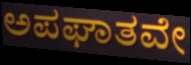
ಅಪಘಾತವೇ